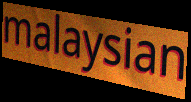
malaysian